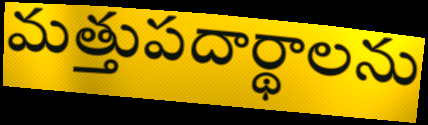
మత్తుపదార్థాలను